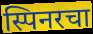
स्पिनरचा